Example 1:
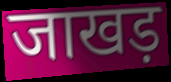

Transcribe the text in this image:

जाखड़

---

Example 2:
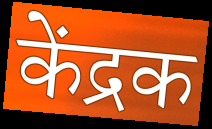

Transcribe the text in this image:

केंद्रक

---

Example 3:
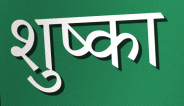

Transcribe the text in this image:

शुष्का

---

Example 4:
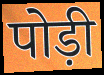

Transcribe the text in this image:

पोड़ी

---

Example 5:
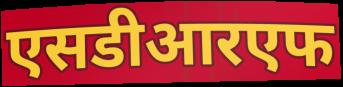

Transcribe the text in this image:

एसडीआरएफ